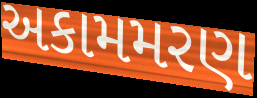
અકામમરણ